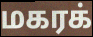
மகரக்